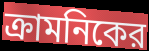
ক্রামনিকের